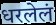
धरलेलं